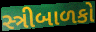
સ્ત્રીબાળકો